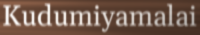
Kudumiyamalai